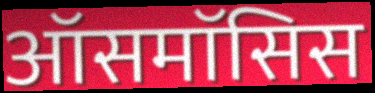
ऑसमॉसिस